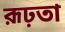
রূঢ়তা